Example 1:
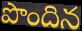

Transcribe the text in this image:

పొందిన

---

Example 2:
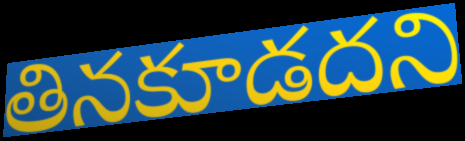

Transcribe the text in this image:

తినకూడదని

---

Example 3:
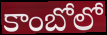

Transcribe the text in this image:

కాంబోలో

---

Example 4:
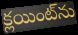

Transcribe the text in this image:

క్లయింట్‌ను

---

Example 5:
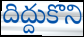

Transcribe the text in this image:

దిద్దుకొని